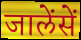
जालेंसें